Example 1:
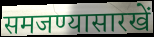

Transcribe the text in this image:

समजण्यासारखें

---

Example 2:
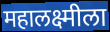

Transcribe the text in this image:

महालक्ष्मीला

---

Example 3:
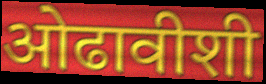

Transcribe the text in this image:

ओढावीशी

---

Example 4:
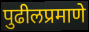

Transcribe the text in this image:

पुढीलप्रमाणे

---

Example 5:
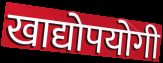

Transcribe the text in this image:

खाद्योपयोगी